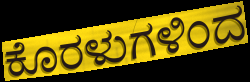
ಕೊರಳುಗಳಿಂದ